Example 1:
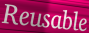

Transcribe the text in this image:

Reusable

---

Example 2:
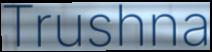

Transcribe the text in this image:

Trushna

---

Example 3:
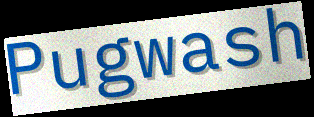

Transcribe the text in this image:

Pugwash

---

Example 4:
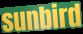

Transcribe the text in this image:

sunbird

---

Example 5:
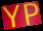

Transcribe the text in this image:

YP